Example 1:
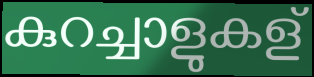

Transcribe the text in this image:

കുറച്ചാളുകള്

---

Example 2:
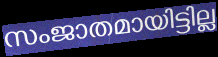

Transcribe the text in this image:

സംജാതമായിട്ടില്ല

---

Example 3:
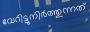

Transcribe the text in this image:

വേറിട്ടുനിർത്തുന്നത്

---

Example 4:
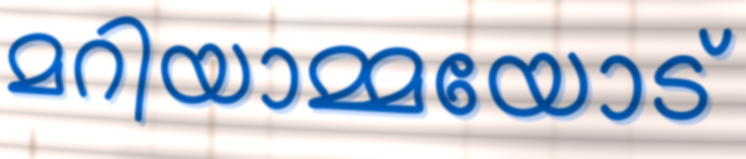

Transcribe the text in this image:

മറിയാമ്മയോട്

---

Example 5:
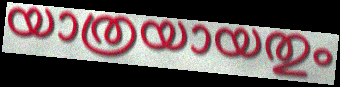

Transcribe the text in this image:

യാത്രയായതും